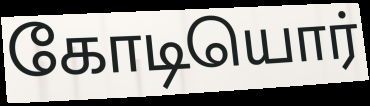
கோடியொர்